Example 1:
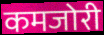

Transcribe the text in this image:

कमजोरी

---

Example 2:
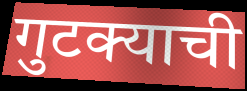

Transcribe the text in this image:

गुटक्याची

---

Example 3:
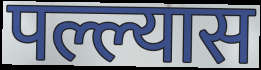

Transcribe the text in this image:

पल्ल्यास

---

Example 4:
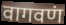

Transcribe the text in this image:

वागवणं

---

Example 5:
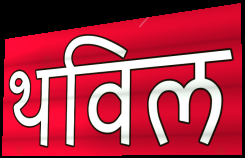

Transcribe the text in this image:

थविल